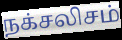
நக்சலிசம்